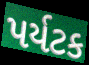
પર્યટક